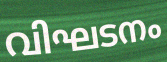
വിഘടനം